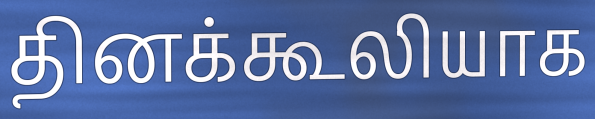
தினக்கூலியாக